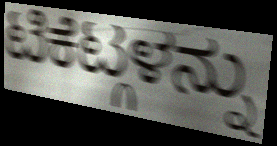
ಟಿಕೆಟ್ಗಳನ್ನು